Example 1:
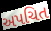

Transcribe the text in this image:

અપચિત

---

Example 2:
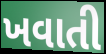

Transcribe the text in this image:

ખવાતી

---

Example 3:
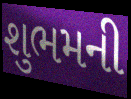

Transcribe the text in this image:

શુભમની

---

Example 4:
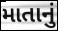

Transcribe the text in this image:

માતાનું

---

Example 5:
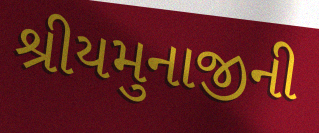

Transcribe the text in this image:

શ્રીયમુનાજીની